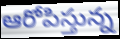
ఆరోపిస్తున్న